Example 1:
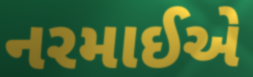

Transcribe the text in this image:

નરમાઈએ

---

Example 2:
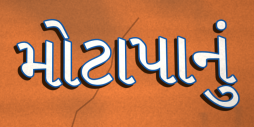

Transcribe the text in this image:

મોટાપાનું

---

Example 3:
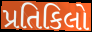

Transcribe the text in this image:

પ્રતિકિલો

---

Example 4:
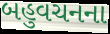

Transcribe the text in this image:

બહુવચનના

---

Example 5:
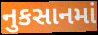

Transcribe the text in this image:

નુકસાનમાં